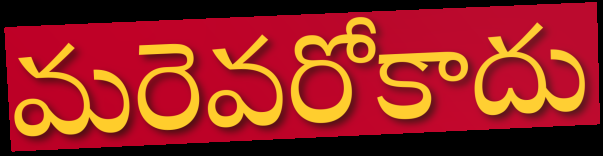
మరెవరోకాదు